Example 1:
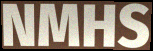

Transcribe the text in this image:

NMHS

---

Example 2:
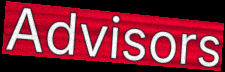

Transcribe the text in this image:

Advisors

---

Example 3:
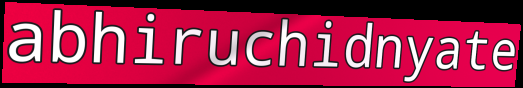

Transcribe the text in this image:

abhiruchidnyate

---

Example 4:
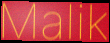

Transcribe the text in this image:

Malik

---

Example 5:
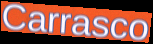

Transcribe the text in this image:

Carrasco